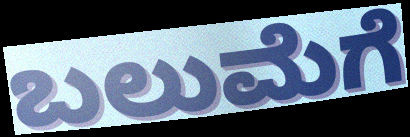
ಬಲುಮೆಗೆ